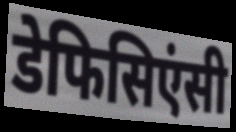
डेफिसिएंसी